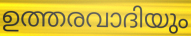
ഉത്തരവാദിയും